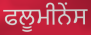
ਫਲੂਮੀਨੇਂਸ